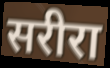
सरीरा